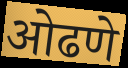
ओढणे